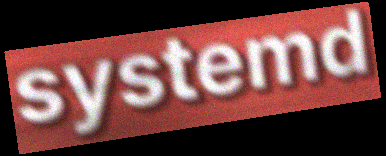
systemd